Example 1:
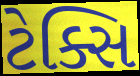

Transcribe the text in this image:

ટેક્સિ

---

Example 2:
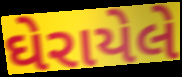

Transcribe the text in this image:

ઘેરાયેલે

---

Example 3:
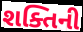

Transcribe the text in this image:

શક્તિની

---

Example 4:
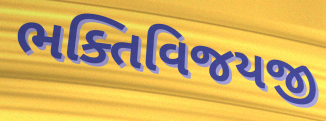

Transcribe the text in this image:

ભક્તિવિજયજી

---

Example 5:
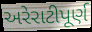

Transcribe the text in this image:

અરેરાટીપૂર્ણ